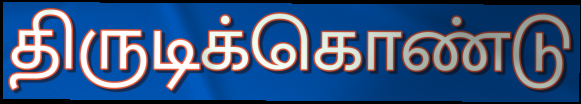
திருடிக்கொண்டு